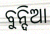
ବୁନ୍ଦିଆ